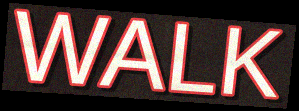
WALK